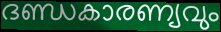
ദണ്ഡകാരണ്യവും